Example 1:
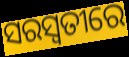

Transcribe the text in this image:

ସରସ୍ୱତୀରେ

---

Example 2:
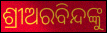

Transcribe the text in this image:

ଶ୍ରୀଅରବିନ୍ଦଙ୍କୁ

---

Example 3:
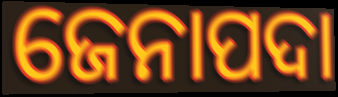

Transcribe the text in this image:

ଜେନାପଦା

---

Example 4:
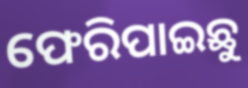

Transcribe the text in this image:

ଫେରିପାଇଛୁ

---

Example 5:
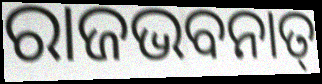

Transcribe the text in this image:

ରାଜଭବନାତ୍